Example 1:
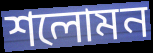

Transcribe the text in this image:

শলোমন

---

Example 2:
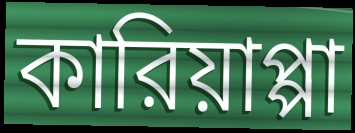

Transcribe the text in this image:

কারিয়াপ্পা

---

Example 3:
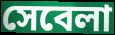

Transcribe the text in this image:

সেবেলা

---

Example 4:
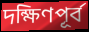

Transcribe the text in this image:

দক্ষিণপূর্ব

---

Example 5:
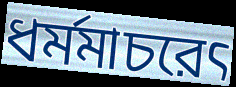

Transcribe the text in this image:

ধর্মমাচরেৎ